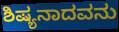
ಶಿಷ್ಯನಾದವನು